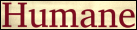
Humane